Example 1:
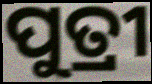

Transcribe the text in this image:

ପୁତ୍ରୀ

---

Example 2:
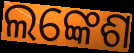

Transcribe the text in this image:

ଲଙ୍କେଶ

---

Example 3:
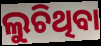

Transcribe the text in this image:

ଲୁଚିଥିବା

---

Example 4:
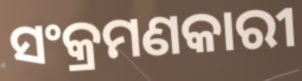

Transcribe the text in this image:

ସଂକ୍ରମଣକାରୀ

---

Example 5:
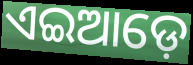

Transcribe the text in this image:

ଏଇଆଡ଼େ